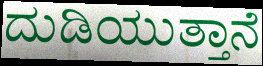
ದುಡಿಯುತ್ತಾನೆ